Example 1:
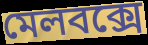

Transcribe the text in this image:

মেলবক্সে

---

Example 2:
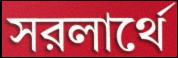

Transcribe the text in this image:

সরলার্থে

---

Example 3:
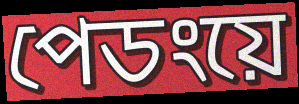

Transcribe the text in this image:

পেডংয়ে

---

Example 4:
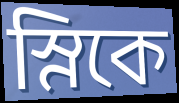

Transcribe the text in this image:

স্নিকে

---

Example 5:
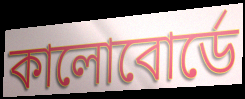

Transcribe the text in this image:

কালোবোর্ডে